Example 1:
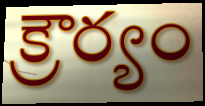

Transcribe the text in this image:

క్రౌర్యం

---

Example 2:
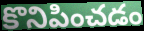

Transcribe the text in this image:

కొనిపించడం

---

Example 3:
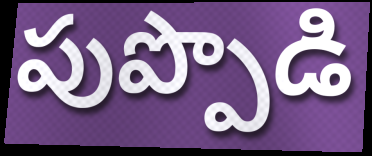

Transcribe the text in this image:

పుప్పొడి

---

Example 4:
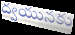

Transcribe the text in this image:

ద్వయునకు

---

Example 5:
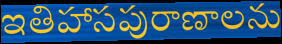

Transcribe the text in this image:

ఇతిహాసపురాణాలను